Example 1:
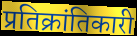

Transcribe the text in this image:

प्रतिक्रांतिकारी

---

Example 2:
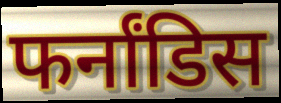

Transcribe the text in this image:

फर्नांडिस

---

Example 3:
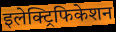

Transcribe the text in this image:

इलेक्ट्रिफिकेशन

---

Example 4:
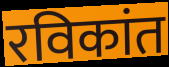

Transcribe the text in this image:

रविकांत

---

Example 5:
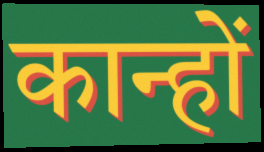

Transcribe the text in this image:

कान्हों